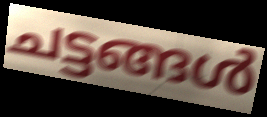
ചട്ടങ്ങൾ